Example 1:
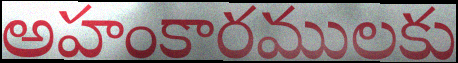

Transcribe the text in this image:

అహంకారములకు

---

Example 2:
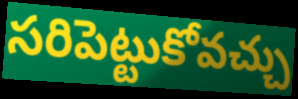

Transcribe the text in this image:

సరిపెట్టుకోవచ్చు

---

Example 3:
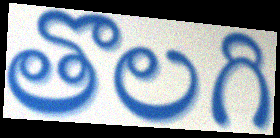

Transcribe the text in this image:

తొలగి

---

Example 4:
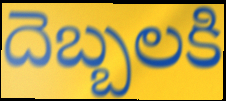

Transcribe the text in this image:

దెబ్బలకి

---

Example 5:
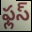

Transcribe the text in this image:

ఫ్లస్